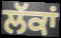
ਲੱਕਾਂ